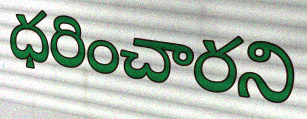
ధరించారని